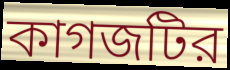
কাগজটির